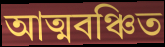
আত্মবঞ্চিত